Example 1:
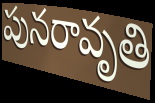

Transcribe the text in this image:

పునరావృతి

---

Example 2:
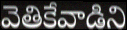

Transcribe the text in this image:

వెతికేవాడిని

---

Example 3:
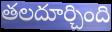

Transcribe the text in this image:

తలదూర్చింది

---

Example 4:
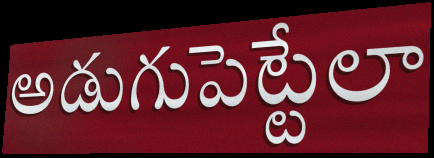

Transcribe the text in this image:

అడుగుపెట్టేలా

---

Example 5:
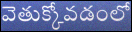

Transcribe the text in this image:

వెతుక్కోవడంలో